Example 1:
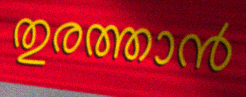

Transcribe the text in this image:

തുരത്താൻ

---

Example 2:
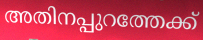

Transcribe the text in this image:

അതിനപ്പുറത്തേക്ക്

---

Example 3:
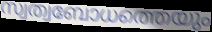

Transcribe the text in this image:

സ്വത്വബോധത്തെയും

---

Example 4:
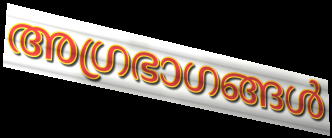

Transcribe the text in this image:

അഗ്രഭാഗങ്ങൾ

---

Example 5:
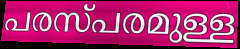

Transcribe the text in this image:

പരസ്പരമുള്ള